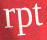
rpt